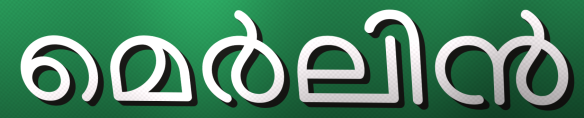
മെർലിൻ